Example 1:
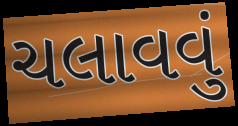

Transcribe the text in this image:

ચલાવવું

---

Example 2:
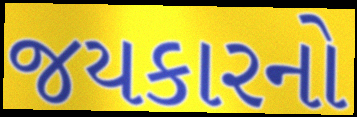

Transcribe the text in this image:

જયકારનો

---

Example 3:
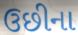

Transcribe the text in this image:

ઉછીના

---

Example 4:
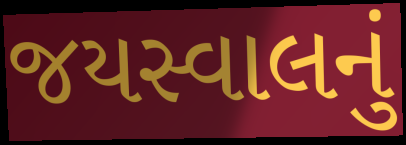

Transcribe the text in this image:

જયસ્વાલનું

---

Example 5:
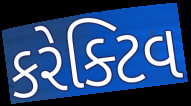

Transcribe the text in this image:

કરેક્ટિવ